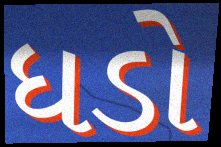
ધડો